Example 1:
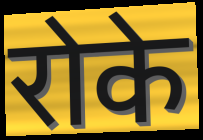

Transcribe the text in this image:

रोके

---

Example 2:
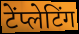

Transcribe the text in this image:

टेंप्लेटिंग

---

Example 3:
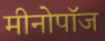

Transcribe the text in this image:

मीनोपॉज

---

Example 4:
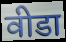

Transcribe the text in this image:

वीडा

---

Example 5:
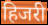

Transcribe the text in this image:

हिजरी